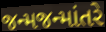
જન્મજન્માંતરે